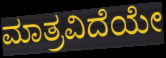
ಮಾತ್ರವಿದೆಯೇ